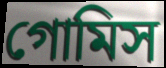
গোমিস